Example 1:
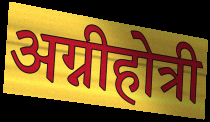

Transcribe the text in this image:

अग्नीहोत्री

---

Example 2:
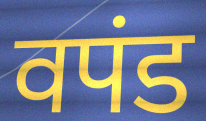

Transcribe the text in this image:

वपंड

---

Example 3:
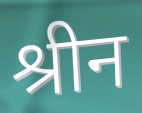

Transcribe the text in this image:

श्रीन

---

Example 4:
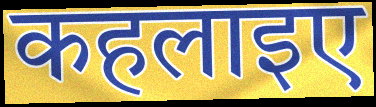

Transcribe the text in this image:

कहलाइए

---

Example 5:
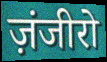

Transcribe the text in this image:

ज़ंजीरो